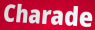
Charade